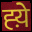
ह्य़े